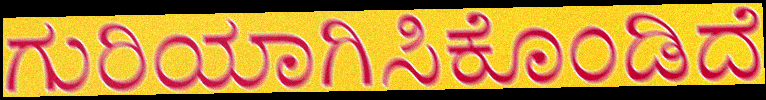
ಗುರಿಯಾಗಿಸಿಕೊಂಡಿದೆ